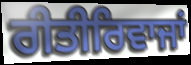
ਰੀਤੀਰਿਵਾਜਾਂ